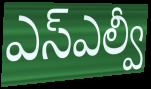
ఎస్ఎల్వీ